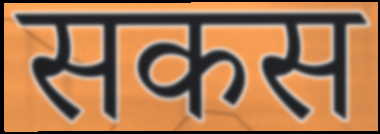
सकस